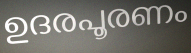
ഉദരപൂരണം